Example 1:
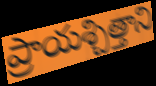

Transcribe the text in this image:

ప్రాయశ్చిత్తాని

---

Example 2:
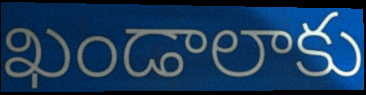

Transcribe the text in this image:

ఖండాలాకు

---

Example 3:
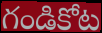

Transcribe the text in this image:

గండికోట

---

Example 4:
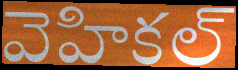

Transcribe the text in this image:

వెహికల్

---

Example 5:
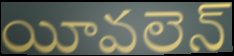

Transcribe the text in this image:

యీవలెన్